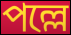
পল্লে